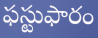
ఫస్టుఫారం